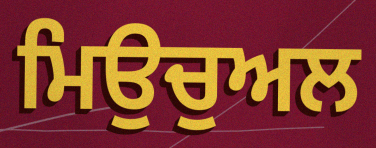
ਮਿਉਚੁਅਲ